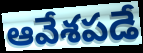
ఆవేశపడే